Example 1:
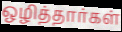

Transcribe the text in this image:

ஒழித்தார்கள்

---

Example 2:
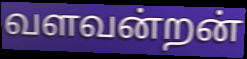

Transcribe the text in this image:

வளவன்றன்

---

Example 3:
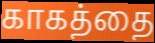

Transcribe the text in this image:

காகத்தை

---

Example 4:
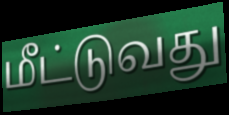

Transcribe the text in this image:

மீட்டுவது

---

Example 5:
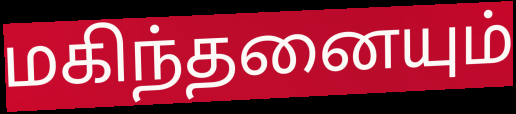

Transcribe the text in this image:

மகிந்தனையும்